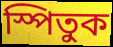
স্পিতুক